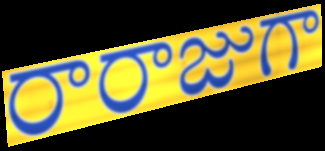
రారాజుగా